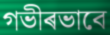
গভীৰভাবে